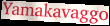
Yamakavaggo